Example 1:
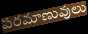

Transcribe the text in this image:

పరమాణువులు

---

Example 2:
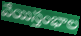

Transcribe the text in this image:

వేయిస్తంభాల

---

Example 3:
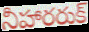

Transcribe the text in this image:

నీహారరుక్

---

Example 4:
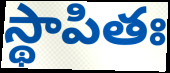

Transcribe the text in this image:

స్థాపితః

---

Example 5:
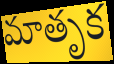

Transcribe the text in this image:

మాతృక